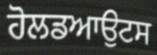
ਹੋਲਡਆਉਟਸ